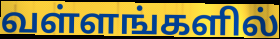
வள்ளங்களில்